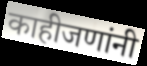
काहीजणांनी